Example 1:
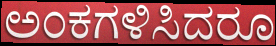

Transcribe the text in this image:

ಅಂಕಗಳಿಸಿದರೂ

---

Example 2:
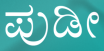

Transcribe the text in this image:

ಪುಡೀ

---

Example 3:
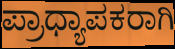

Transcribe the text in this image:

ಪ್ರಾಧ್ಯಾಪಕರಾಗಿ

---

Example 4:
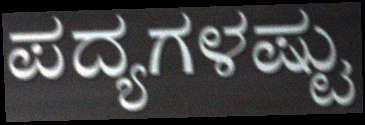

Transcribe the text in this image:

ಪದ್ಯಗಳಷ್ಟು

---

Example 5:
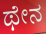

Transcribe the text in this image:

ಥೇನ